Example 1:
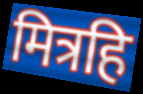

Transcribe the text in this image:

मित्रहि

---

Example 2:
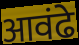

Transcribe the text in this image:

आवंढे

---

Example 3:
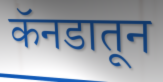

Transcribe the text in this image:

कॅनडातून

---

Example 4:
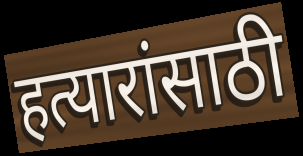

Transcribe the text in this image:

हत्यारांसाठी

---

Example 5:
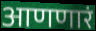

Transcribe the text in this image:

आणणारं